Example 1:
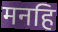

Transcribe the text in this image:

मनहि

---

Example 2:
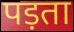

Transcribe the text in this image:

पड़ता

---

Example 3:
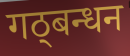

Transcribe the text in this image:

गठ्बन्धन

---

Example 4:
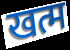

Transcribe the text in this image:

खत्म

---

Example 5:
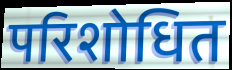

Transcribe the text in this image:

परिशोधित